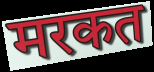
मरकत